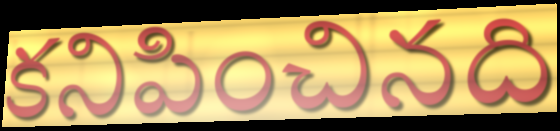
కనిపించినది